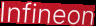
Infineon